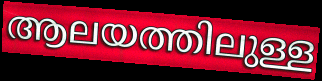
ആലയത്തിലുള്ള